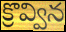
క్రొవ్విన